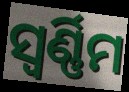
ସ୍ୱର୍ଣ୍ଣିମ